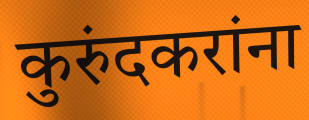
कुरुंदकरांना